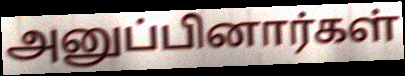
அனுப்பினார்கள்